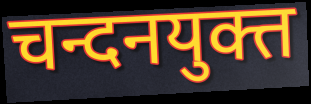
चन्दनयुक्त